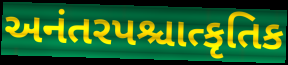
અનંતરપશ્ચાત્કૃતિક